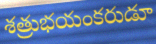
శత్రుభయంకరుడూ